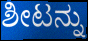
ಶೀಟನ್ನು